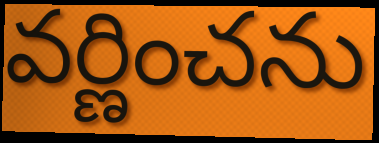
వర్ణించను